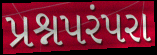
પ્રશ્નપરંપરા